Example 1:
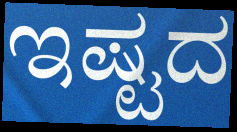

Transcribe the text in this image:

ಇಷ್ಟದ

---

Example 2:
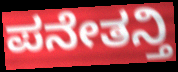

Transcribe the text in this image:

ಪನೇತನ್ತಿ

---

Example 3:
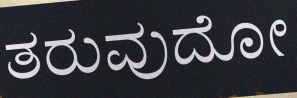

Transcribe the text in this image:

ತರುವುದೋ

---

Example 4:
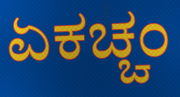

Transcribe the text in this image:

ಏಕಚ್ಚಂ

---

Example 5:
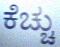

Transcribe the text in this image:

ಕೆಚ್ಚು